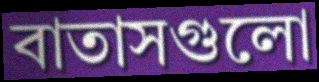
বাতাসগুলো